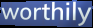
worthily